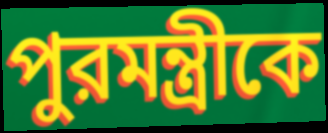
পুরমন্ত্রীকে